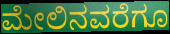
ಮೇಲಿನವರೆಗೂ